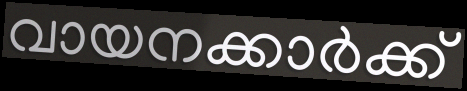
വായനക്കാർക്ക്